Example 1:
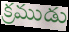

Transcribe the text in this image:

క్రముడు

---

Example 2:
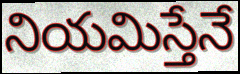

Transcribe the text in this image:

నియమిస్తేనే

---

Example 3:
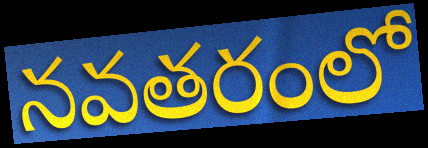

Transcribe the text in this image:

నవతరంలో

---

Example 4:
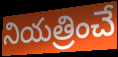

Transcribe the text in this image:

నియత్రించే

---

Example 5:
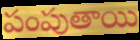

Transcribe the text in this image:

పంపుతాయి